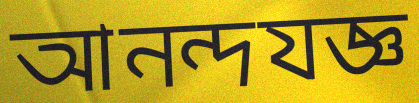
আনন্দযজ্ঞ